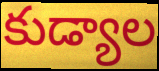
కుడ్యాల